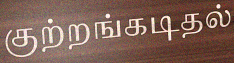
குற்றங்கடிதல்